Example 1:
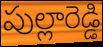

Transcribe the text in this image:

పుల్లారెడ్డి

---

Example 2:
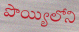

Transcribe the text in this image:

పొయ్యిలోని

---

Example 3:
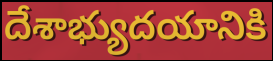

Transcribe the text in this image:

దేశాభ్యుదయానికి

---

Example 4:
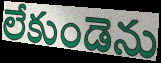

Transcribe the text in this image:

లేకుండెను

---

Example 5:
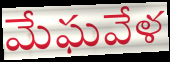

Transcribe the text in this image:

మేఘవేళ